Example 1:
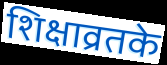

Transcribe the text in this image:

शिक्षाव्रतके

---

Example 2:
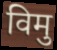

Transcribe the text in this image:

विमु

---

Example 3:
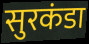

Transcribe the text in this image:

सुरकंडा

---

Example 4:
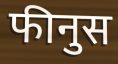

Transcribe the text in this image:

फीनुस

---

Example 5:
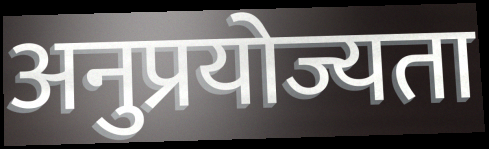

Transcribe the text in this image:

अनुप्रयोज्यता